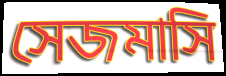
সেজমাসি